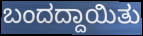
ಬಂದದ್ದಾಯಿತು